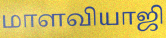
மாளவியாஜி